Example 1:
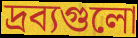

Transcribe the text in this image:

দ্রব্যগুলো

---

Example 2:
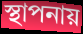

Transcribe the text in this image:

স্থাপনায়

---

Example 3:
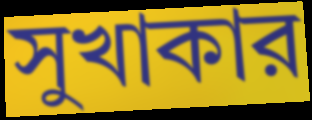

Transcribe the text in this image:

সুখাকার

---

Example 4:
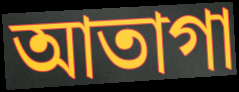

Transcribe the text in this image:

আতাগা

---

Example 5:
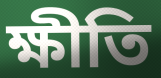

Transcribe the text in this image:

ক্ষীতি